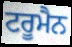
ਟਰੂਮੈਨ